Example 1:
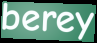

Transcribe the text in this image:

berey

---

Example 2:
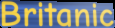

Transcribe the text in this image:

Britanic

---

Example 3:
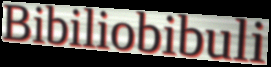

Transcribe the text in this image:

Bibiliobibuli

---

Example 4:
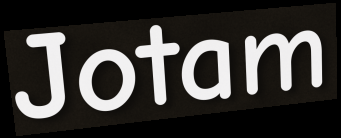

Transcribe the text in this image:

Jotam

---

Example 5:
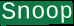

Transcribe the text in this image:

Snoop